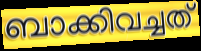
ബാക്കിവച്ചത്